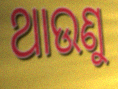
ଥାଉଣୁ